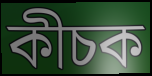
কীচক